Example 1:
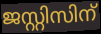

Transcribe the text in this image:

ജസ്റ്റിസിന്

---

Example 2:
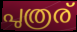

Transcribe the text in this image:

പുത്രര്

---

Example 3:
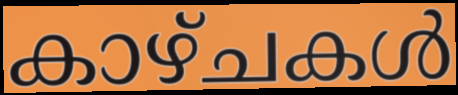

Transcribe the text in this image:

കാഴ്ചകൾ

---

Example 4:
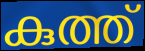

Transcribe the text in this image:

കുത്ത്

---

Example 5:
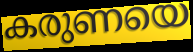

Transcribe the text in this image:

കരുണയെ